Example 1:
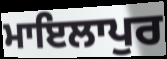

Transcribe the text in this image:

ਮਾਇਲਾਪੁਰ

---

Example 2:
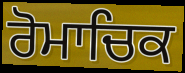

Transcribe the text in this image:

ਰੋਮਾਚਿਕ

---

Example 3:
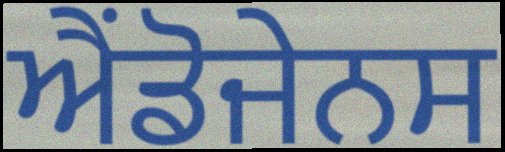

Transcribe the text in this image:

ਐਂਡੋਜੇਨਸ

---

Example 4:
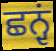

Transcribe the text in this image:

ਛਨ੍ਦਂ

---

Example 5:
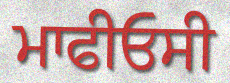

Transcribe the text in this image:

ਮਾਫੀਓਸੀ